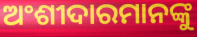
ଅଂଶୀଦାରମାନଙ୍କୁ